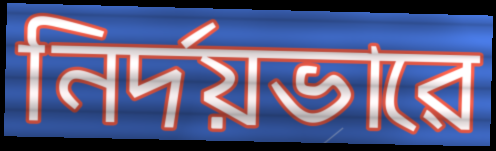
নিৰ্দয়ভাৱে